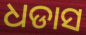
ଧଡାସ